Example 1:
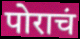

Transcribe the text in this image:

पोराचं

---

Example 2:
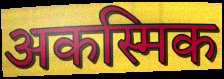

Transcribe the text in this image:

अकस्मिक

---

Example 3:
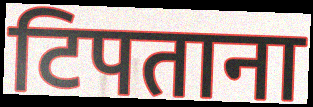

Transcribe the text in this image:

टिपताना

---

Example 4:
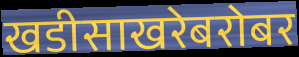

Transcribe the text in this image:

खडीसाखरेबरोबर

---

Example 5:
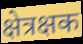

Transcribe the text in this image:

क्षेत्रक्षक